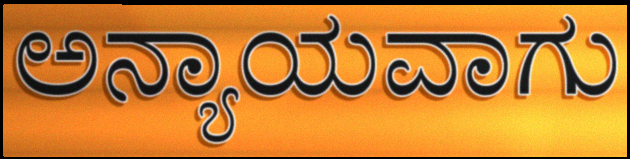
ಅನ್ಯಾಯವಾಗು